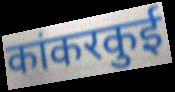
कांकरकुई